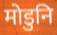
मोडुनि